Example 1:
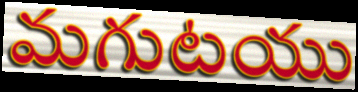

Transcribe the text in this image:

మగుటయు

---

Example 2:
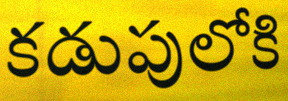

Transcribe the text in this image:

కడుపులోకి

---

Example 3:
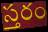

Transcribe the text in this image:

స్తరం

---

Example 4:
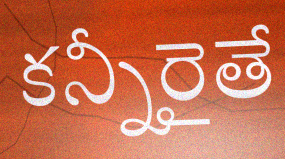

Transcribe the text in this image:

కన్నీరైతే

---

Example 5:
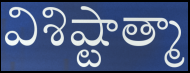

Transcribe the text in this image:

విశిష్టాత్మా